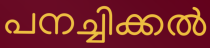
പനച്ചിക്കൽ